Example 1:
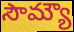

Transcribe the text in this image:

సౌమ్యౌ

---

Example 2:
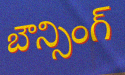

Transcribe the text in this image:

బౌన్సింగ్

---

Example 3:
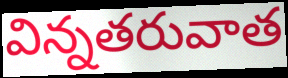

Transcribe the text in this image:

విన్నతరువాత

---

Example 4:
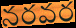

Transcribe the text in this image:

నరవర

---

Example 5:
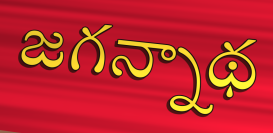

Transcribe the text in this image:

జగన్నాథ